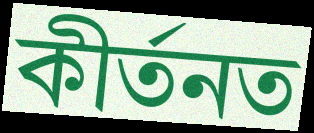
কীৰ্তনত